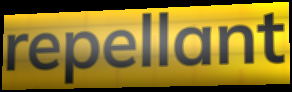
repellant